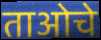
ताओचे